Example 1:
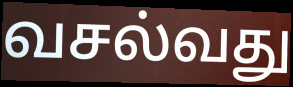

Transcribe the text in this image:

வசல்வது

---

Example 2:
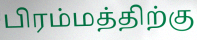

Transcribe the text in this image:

பிரம்மத்திற்கு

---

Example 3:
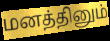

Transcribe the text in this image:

மனத்தினும்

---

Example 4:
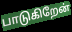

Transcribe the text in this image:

பாடுகிறேன்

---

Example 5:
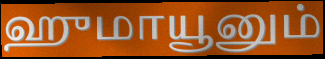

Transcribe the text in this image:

ஹுமாயூனும்